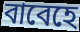
বাবেহে